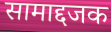
सामाद्दजक